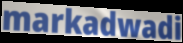
markadwadi